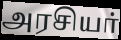
அரசியர்